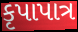
કૃપાપાત્ર